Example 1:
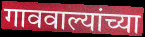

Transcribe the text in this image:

गाववाल्यांच्या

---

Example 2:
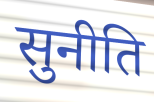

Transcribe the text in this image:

सुनीति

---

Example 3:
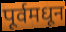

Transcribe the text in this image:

पूर्वमधून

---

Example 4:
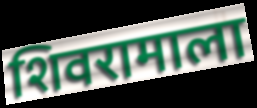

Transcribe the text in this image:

शिवरामाला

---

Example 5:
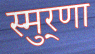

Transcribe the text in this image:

स्मुर्णा